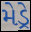
મેડ્રે